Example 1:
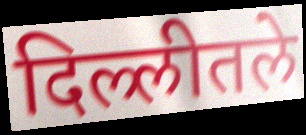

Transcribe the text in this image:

दिल्लीतले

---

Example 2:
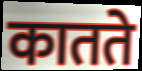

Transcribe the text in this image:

कातते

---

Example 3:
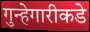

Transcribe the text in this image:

गुन्हेगारीकडे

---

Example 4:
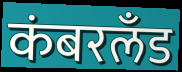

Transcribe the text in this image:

कंबरलँड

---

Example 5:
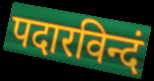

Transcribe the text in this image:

पदारविन्दं